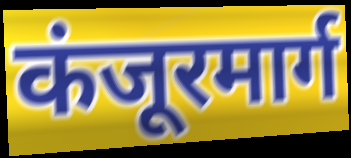
कंजूरमार्ग